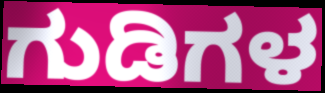
ಗುಡಿಗಳ